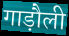
गाड़ौली